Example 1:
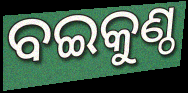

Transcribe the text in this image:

ବଇକୁଣ୍ଠ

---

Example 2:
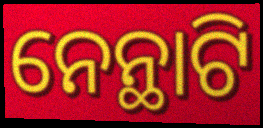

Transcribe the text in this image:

ନେନ୍ଥାଟି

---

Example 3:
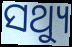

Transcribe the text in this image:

ସଥ୍ୟୁ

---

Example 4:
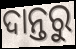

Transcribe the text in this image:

ଦାନ୍ତରୁ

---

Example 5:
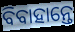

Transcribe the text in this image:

ବିବାହାନ୍ତେ